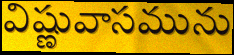
విష్ణువాసమును